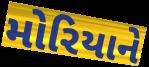
મોરિયાને